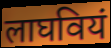
लाघवियं